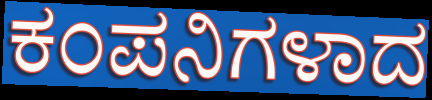
ಕಂಪನಿಗಳಾದ